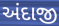
અંદાજી